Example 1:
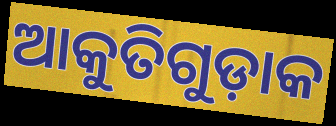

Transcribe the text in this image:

ଆକୁତିଗୁଡ଼ାକ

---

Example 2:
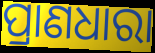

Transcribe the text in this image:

ପ୍ରାଣଧାରା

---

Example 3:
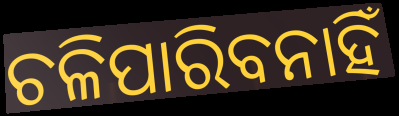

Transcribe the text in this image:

ଚଳିପାରିବନାହିଁ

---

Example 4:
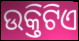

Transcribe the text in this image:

ଉକ୍ତିଟିଏ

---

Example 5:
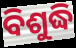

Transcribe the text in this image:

ବିଶୁଦ୍ଧି